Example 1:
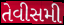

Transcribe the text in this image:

તેવીસમી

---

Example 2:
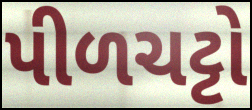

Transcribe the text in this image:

પીળચટ્ટો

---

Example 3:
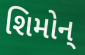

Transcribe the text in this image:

શિમોન્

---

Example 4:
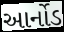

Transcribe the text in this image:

આર્નોડ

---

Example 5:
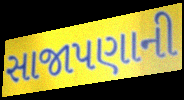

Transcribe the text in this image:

સાજાપણાની